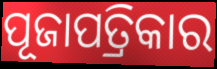
ପୂଜାପତ୍ରିକାର